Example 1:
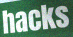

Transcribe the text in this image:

hacks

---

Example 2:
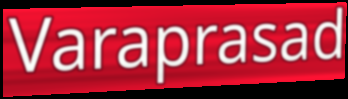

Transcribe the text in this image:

Varaprasad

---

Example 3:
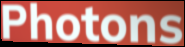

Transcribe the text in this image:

Photons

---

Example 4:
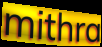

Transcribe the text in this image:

mithra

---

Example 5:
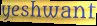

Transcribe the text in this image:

yeshwant